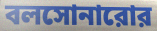
বলসোনারোর